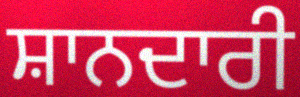
ਸ਼ਾਨਦਾਰੀ